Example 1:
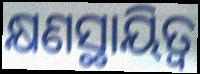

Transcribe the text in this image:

କ୍ଷଣସ୍ଥାୟିତ୍ୱ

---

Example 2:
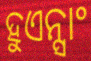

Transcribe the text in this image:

ହୁଏନ୍ସାଂ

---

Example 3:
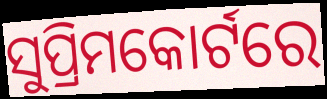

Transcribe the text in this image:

ସୁପ୍ରିମକୋର୍ଟରେ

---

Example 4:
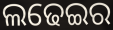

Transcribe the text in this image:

ଲଢେଇର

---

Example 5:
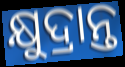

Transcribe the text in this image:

କ୍ଷୁଦ୍ରାନ୍ତ